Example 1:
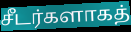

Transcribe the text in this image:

சீடர்களாகத்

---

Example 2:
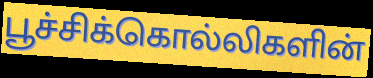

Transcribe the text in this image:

பூச்சிக்கொல்லிகளின்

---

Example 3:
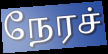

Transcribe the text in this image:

நேரச்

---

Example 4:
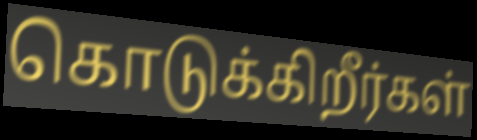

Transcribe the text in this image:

கொடுக்கிறீர்கள்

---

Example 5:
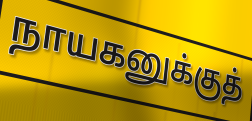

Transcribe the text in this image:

நாயகனுக்குத்